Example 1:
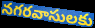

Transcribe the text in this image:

నగరవాసులకు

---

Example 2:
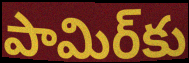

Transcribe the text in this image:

పామిర్‌కు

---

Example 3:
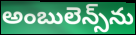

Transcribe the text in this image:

అంబులెన్స్‌ను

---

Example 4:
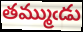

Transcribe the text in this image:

తమ్ముఁడు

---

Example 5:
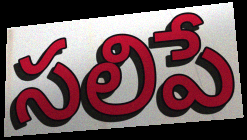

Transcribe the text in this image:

సలిపే